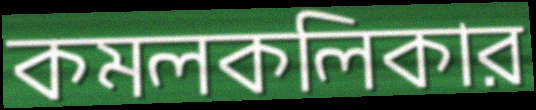
কমলকলিকার